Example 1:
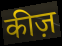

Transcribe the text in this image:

कीज़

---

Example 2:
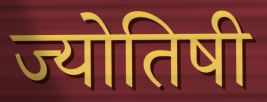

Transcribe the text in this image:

ज्योतिषी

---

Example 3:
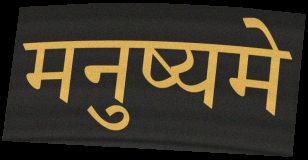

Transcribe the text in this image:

मनुष्यमे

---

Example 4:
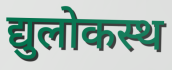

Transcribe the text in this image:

द्युलोकस्थ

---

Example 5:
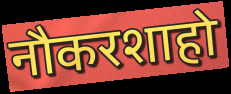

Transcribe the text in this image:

नौकरशाहो